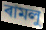
ৰামলু